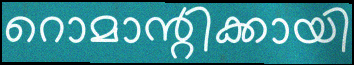
റൊമാന്റിക്കായി